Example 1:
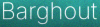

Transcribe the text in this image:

Barghout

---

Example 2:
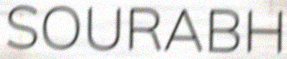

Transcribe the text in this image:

SOURABH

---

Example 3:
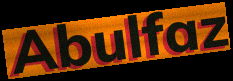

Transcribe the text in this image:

Abulfaz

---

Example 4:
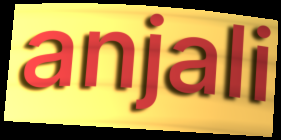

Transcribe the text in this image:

anjali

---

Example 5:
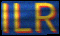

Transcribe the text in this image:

ILR